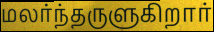
மலர்ந்தருளுகிறார்